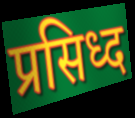
प्रसिध्द